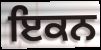
ਇਕਨ